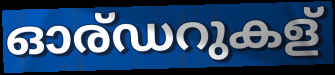
ഓര്ഡറുകള്